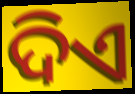
ଦିଏ